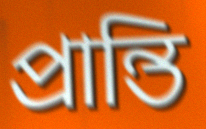
প্রান্তি